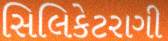
સિલિકેટરાગી